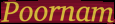
Poornam